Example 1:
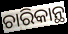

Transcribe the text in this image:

ଚାରିକାନ୍ଥ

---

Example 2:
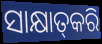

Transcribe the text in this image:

ସାକ୍ଷାତ୍‌କରି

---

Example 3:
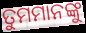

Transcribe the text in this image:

ତୁମମାନଙ୍କୁ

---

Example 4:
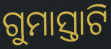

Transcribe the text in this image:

ଗୁମାସ୍ତାଟି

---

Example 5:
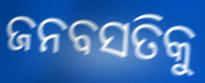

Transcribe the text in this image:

ଜନବସତିକୁ